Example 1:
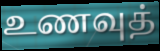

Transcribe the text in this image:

உணவுத்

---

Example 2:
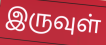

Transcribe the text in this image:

இருவுள்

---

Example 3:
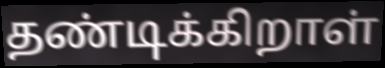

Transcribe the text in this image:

தண்டிக்கிறாள்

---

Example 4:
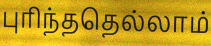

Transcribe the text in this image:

புரிந்ததெல்லாம்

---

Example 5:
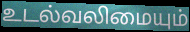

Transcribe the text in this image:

உடல்வலிமையும்